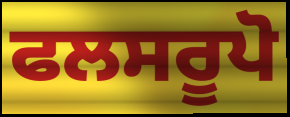
ਫਲਸਰੂਪੋ